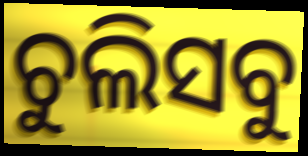
ଚୁଲିସବୁ